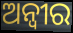
ଅନ୍ୱୀର